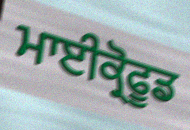
ਮਾਈਕ੍ਰੋਫੂਡ